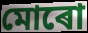
মোৰো